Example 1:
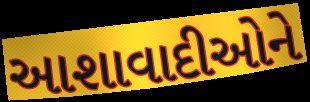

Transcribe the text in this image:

આશાવાદીઓને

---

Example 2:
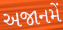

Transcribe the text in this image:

અજાનમેં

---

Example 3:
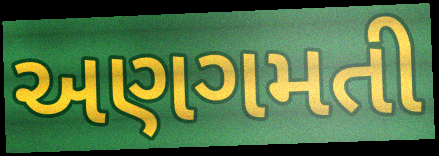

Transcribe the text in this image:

અણગમતી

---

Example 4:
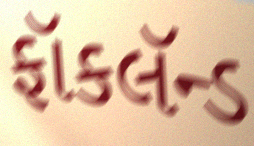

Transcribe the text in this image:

ફૉકલૅન્ડ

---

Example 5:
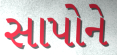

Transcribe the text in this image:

સાપોને